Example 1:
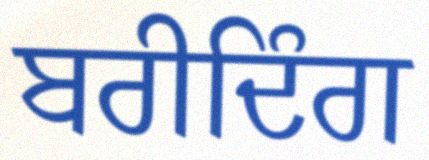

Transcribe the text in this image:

ਬਰੀਦਿੰਗ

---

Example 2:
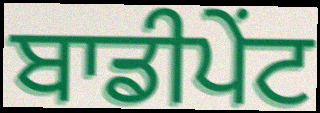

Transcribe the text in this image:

ਬਾਡੀਪੇਂਟ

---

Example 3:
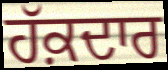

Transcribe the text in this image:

ਹੱਕ਼ਦਾਰ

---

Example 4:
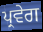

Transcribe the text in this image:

ਪ੍ਰਵੇਗ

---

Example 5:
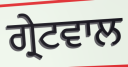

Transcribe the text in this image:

ਗ੍ਰੇਟਵਾਲ